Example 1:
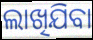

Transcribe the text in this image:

ଲାଖିଯିବା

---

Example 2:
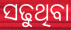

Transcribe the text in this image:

ସଢୁଥିବା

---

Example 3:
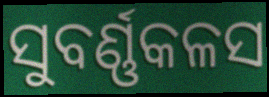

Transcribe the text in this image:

ସୁବର୍ଣ୍ଣକଳସ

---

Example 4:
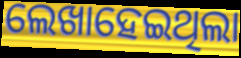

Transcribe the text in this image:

ଲେଖାହେଇଥିଲା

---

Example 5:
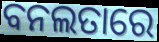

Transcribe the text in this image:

ବନଲତାରେ